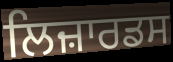
ਲਿਜ਼ਾਰਡਸ